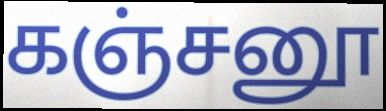
கஞ்சனூ